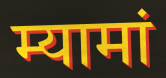
म्यामां